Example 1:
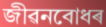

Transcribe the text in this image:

জীৱনবোধৰ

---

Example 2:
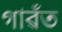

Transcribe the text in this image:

গাৱঁত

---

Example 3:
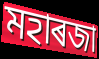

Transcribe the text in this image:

মহাৰজা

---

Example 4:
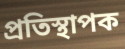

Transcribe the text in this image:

প্ৰতিস্থাপক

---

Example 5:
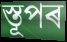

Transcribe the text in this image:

স্তূপৰ